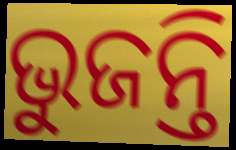
ଭୁଜନ୍ତି